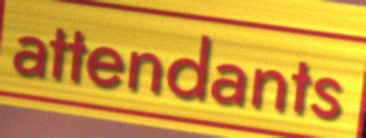
attendants